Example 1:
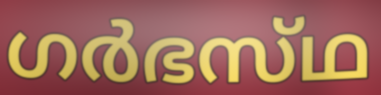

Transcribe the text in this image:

ഗർഭസ്‌ഥ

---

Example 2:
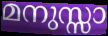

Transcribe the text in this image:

മനുസ്സാ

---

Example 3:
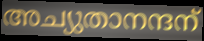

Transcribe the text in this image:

അച്യുതാനന്ദന്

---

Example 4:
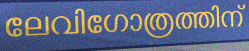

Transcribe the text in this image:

ലേവിഗോത്രത്തിന്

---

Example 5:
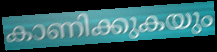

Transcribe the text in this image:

കാണിക്കുകയും